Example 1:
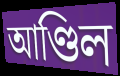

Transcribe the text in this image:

আণ্ডিল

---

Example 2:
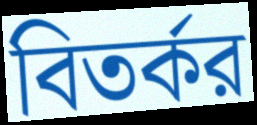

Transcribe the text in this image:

বিতর্কর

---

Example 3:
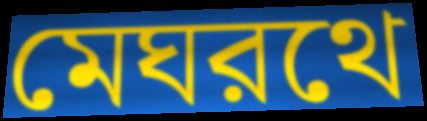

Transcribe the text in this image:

মেঘরথে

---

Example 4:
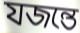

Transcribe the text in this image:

যজন্তে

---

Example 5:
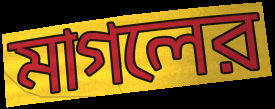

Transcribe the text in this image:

মাগলের